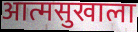
आत्मसुखाला